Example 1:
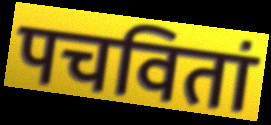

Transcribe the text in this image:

पचवितां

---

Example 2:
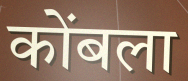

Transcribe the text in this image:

कोंबला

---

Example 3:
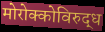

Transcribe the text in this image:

मोरोक्कोविरुद्ध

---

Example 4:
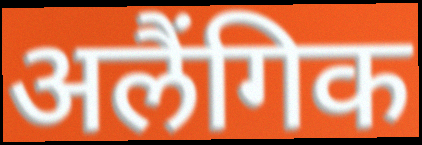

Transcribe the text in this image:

अलैंगिक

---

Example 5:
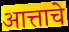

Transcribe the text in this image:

आत्ताचे